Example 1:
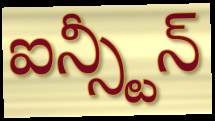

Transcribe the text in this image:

ఐన్స్టీన్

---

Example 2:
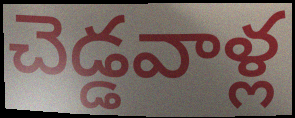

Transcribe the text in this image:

చెడ్డవాళ్ల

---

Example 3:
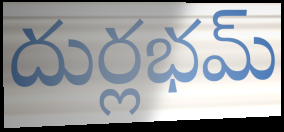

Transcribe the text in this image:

దుర్లభమ్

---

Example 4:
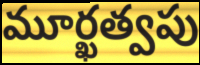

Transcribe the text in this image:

మూర్ఖత్వపు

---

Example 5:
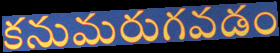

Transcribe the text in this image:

కనుమరుగవడం